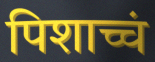
पिशाच्चं